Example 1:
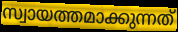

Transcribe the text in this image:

സ്വായത്തമാക്കുന്നത്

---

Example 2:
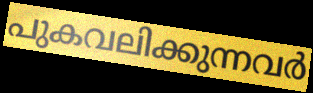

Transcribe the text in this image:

പുകവലിക്കുന്നവർ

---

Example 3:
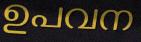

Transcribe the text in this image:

ഉപവന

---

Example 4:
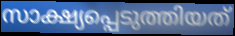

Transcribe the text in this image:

സാക്ഷ്യപ്പെടുത്തിയത്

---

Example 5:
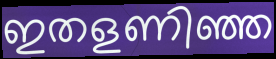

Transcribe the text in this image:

ഇതളണിഞ്ഞ